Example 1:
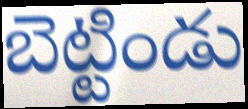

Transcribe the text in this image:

బెట్టిండు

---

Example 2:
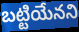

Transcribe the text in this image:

బట్టియేనని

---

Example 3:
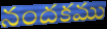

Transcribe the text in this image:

నందకము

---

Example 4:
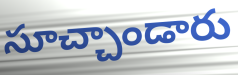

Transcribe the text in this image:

సూచ్చాండారు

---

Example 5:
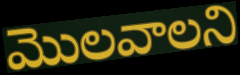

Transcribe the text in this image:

మొలవాలని